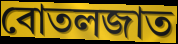
বোতলজাত